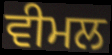
ਵੀਮਲ